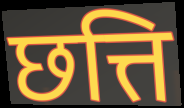
छत्ति